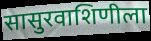
सासुरवाशिणीला